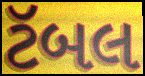
ટૅબલ